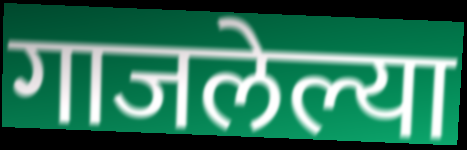
गाजलेल्या